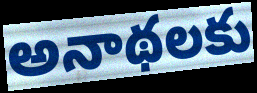
అనాథలకు